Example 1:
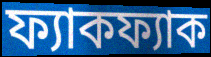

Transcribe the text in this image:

ফ্যাকফ্যাক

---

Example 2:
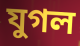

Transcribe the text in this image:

যুগল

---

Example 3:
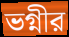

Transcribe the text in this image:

ভগ্নীর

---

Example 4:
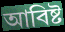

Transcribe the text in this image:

আবিষ্ট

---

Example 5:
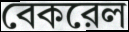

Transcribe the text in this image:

বেকরেল